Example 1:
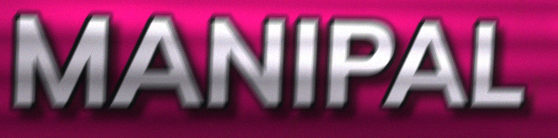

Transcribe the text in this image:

MANIPAL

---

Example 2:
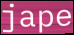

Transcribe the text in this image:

jape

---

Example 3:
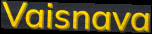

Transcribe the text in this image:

Vaisnava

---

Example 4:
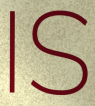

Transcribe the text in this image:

IS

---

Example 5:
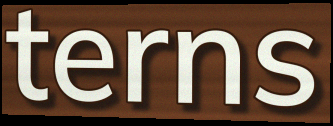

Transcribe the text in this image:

terns